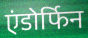
एंडोर्फिन